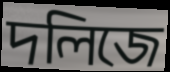
দলিজে